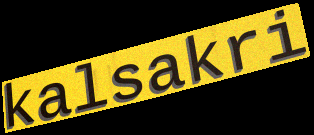
kalsakri